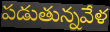
పడుతున్నవేళ